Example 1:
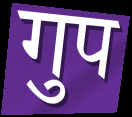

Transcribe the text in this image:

गुप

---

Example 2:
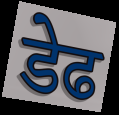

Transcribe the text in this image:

डेढ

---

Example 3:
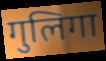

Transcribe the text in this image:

गुलिगा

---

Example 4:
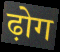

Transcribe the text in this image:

ढ़ोग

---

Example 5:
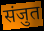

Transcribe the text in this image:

संजुत